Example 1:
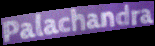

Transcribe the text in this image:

Palachandra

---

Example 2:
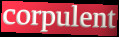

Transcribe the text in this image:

corpulent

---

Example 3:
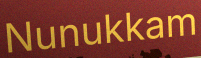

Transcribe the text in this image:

Nunukkam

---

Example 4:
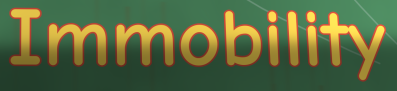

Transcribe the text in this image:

Immobility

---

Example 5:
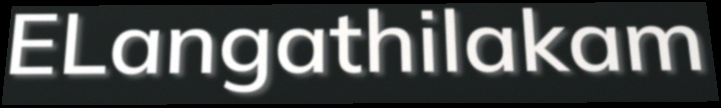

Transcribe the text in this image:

ELangathilakam